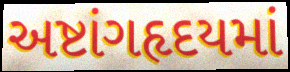
અષ્ટાંગહૃદયમાં